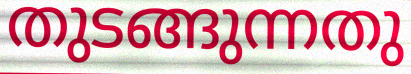
തുടങ്ങുന്നതു